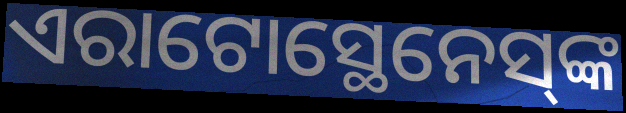
ଏରାଟୋସ୍ଥେନେସ୍‌ଙ୍କ